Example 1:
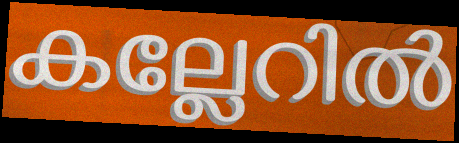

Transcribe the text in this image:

കല്ലേറിൽ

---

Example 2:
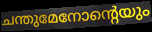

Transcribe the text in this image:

ചന്തുമേനോന്റെയും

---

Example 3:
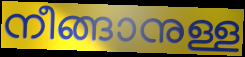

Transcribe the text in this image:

നീങ്ങാനുള്ള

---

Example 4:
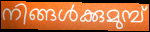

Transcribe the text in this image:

നിങ്ങൾക്കുമുമ്പ്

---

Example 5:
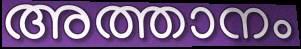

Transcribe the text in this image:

അത്താനം